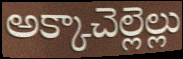
అక్కాచెల్లెల్లు